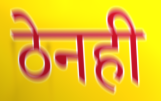
ठेनही